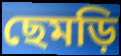
ছেমড়ি